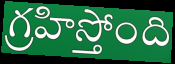
గ్రహిస్తోంది